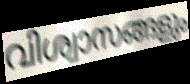
വിശ്വാസങ്ങളും